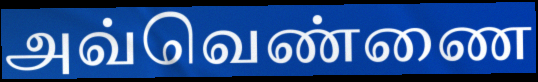
அவ்வெண்ணை